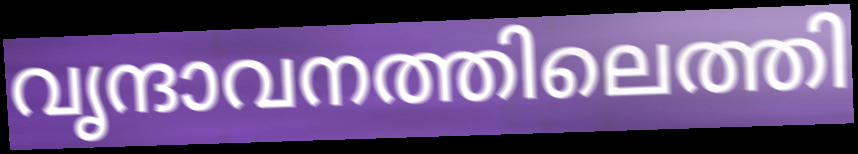
വൃന്ദാവനത്തിലെത്തി